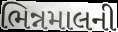
ભિન્નમાલની